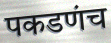
पकडणंच